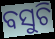
ବସୁଚି